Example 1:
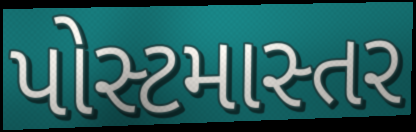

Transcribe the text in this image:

પોસ્ટમાસ્તર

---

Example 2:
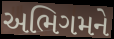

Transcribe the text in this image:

અભિગમને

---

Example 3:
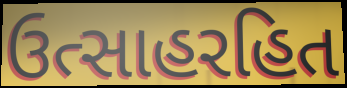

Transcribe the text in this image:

ઉત્સાહરહિત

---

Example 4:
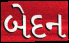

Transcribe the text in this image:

બેદન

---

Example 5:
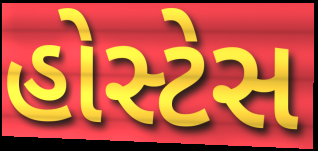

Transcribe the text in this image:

હોસ્ટેસ